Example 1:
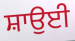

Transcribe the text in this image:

ਸ਼ਾਉਈ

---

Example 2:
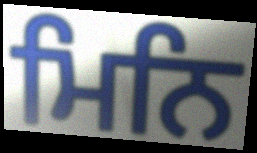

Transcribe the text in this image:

ਮਿਨਿ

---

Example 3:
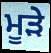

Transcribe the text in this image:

ਮੂੜੇ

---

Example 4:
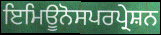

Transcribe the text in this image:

ਇਮਿਊਨੋਸਪਰਪ੍ਰੇਸ਼ਨ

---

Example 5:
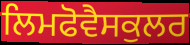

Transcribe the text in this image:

ਲਿਮਫੋਵੈਸਕੁਲਰ